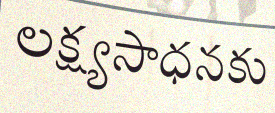
లక్ష్యసాధనకు